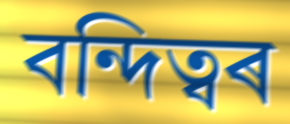
বন্দিত্বৰ